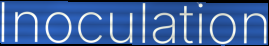
Inoculation